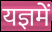
यज्ञमें